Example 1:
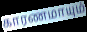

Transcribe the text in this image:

காரணமாயும்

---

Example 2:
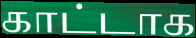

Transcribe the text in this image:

காட்டாக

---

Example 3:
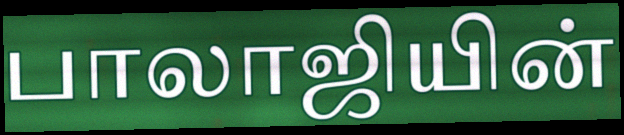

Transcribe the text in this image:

பாலாஜியின்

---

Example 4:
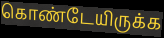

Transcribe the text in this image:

கொண்டேயிருக்க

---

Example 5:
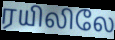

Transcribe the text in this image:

ரயிலிலே